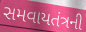
સમવાયતંત્રની